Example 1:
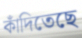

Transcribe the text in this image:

কাঁদিতেছে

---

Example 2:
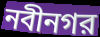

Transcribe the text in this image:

নবীনগর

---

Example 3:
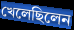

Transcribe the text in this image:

খেলেছিলেন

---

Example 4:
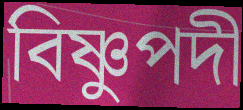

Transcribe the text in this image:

বিষ্ণুপদী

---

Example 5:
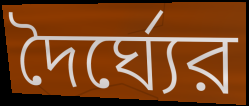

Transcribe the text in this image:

দৈর্ঘ্যের